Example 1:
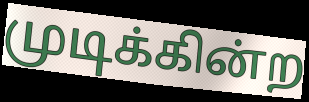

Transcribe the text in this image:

முடிக்கின்ற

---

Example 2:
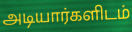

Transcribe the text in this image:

அடியார்களிடம்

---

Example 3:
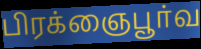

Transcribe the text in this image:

பிரக்ஞைபூர்வ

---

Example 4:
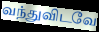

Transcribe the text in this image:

வந்துவிடவே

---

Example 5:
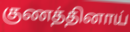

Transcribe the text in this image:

குணத்தினாய்